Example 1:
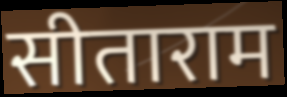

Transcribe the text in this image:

सीताराम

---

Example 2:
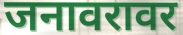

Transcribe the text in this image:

जनावरावर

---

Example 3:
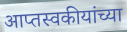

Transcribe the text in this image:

आप्तस्वकीयांच्या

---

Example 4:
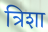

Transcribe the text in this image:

त्रिशा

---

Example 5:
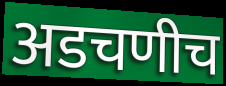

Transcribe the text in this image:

अडचणीच